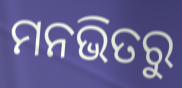
ମନଭିତରୁ